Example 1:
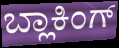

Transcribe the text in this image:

ಬ್ಲಾಕಿಂಗ್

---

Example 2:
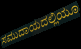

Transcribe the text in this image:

ಸಮುದಾಯದಲ್ಲಿಯೂ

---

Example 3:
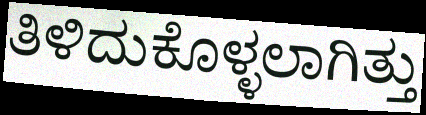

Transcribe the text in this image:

ತಿಳಿದುಕೊಳ್ಳಲಾಗಿತ್ತು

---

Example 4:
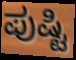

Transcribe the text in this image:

ಪುಷ್ಟಿ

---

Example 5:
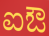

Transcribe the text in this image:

ಐಔ